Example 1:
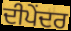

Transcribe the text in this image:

ਦੀਪੇਂਦਰ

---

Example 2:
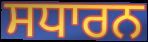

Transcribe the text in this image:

ਸਧਾਰਨ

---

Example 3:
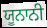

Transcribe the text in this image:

ਯੂਨਾਨੀ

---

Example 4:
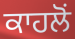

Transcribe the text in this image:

ਕਾਹਲੋਂ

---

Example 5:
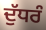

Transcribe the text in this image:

ਦੁੱਧਰੰ